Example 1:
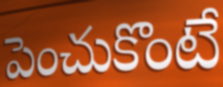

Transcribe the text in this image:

పెంచుకొంటే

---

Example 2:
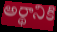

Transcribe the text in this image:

అర్థానికి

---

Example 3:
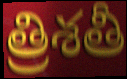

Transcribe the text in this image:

త్రిశతీ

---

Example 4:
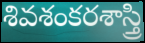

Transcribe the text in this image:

శివశంకరశాస్త్రి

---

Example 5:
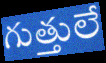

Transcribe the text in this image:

గుత్తులే